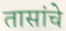
तासांचे